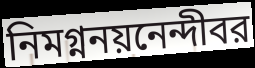
নিমগ্ননয়নেন্দীবর